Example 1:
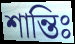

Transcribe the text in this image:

শান্তিঃ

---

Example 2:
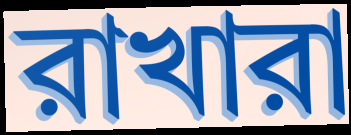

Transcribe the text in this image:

রাখারা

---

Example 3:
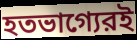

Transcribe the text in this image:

হতভাগ্যেরই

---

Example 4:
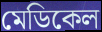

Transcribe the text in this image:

মেডিকেল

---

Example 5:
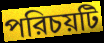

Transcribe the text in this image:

পরিচয়টি